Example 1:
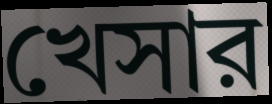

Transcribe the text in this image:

খেসার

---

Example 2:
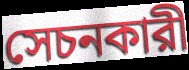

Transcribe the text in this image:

সেচনকারী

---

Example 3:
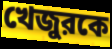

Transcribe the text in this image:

খেজুরকে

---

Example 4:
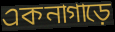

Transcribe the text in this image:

একনাগাড়ে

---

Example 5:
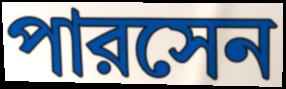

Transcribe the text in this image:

পারসেন